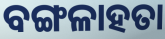
ବଙ୍ଗଳାହତା